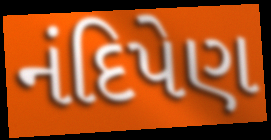
નંદિપેણ